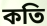
কতি